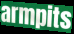
armpits